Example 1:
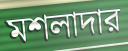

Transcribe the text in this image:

মশলাদার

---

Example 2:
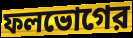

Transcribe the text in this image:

ফলভোগের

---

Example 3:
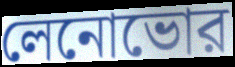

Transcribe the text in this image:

লেনোভোর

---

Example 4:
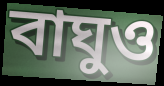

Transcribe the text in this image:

বাঘুও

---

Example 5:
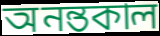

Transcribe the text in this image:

অনন্তকাল